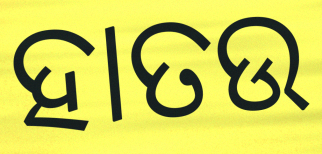
ହାତଉ